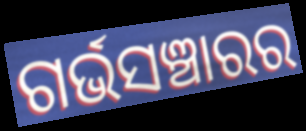
ଗର୍ଭସଞ୍ଚାରର